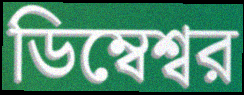
ডিম্বেশ্বর